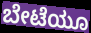
ಬೇಟೆಯೂ